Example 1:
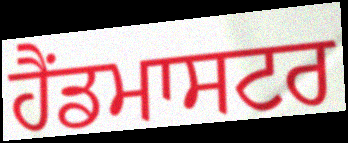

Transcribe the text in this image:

ਹੈਂਡਮਾਸਟਰ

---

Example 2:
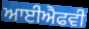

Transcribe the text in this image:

ਆਈਐਫਵੀ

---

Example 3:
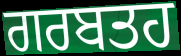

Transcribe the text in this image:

ਗਰਬਤਹ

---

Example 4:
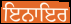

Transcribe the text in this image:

ਇਨਾਇਰ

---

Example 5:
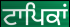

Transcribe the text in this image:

ਟਾਪਿਕਾਂ